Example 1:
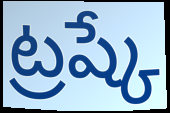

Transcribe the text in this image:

ట్రష్కే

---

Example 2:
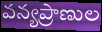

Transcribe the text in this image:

వన్యప్రాణుల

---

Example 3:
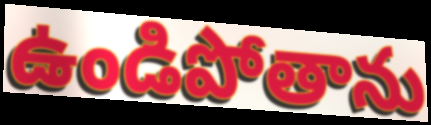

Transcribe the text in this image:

ఉండిపోతాను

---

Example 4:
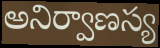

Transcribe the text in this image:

అనిర్వాణస్య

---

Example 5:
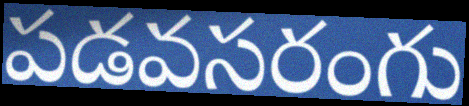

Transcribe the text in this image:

పడవసరంగు